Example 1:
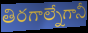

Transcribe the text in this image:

తిరగాల్నేగానీ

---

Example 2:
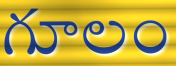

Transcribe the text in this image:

గూలం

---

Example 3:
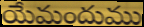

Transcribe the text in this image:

యేమందుము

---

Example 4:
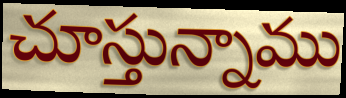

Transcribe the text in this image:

చూస్తున్నాము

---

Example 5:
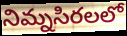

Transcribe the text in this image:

నిమ్నసిరలలో